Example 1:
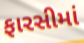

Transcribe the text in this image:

ફારસીમાં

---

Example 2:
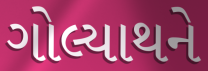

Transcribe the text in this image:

ગોલ્યાથને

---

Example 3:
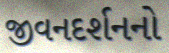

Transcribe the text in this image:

જીવનદર્શનનો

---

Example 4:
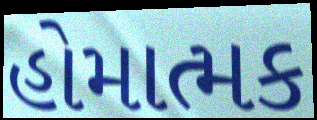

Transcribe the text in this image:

હોમાત્મક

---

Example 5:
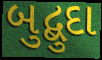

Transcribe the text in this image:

બુદ્બુદા